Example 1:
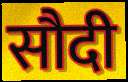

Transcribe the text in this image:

सौदी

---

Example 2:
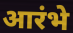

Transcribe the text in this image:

आरंभे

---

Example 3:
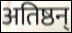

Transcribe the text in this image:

अतिष्ठन्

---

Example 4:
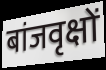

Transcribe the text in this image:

बांजवृक्षों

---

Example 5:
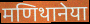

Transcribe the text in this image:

मणिथानेया